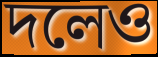
দলেও